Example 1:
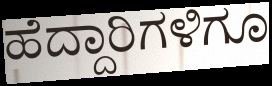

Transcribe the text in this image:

ಹೆದ್ದಾರಿಗಳಿಗೂ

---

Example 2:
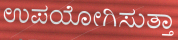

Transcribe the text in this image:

ಉಪಯೋಗಿಸುತ್ತಾ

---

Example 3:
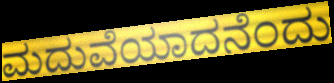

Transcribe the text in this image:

ಮದುವೆಯಾದನೆಂದು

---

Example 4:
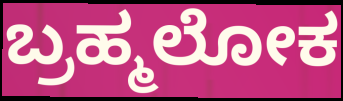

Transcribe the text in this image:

ಬ್ರಹ್ಮಲೋಕ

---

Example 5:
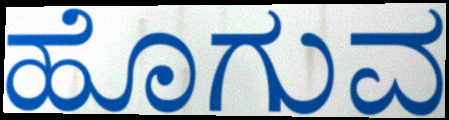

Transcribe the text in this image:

ಹೊಗುವ